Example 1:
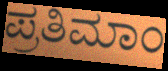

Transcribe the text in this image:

ಪ್ರತಿಮಾಂ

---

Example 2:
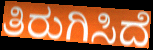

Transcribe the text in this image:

ತಿರುಗಿಸಿದೆ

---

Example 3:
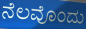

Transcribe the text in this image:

ನೆಲವೊಂದು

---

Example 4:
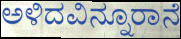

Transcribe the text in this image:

ಅಳಿದವಿನ್ನೂರಾನೆ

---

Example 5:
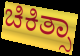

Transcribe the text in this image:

ಚಿಕಿತ್ಸಾ